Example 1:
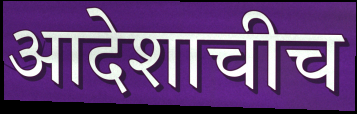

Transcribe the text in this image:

आदेशाचीच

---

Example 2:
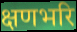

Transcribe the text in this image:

क्षणभरि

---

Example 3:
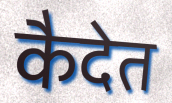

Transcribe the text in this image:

कैदेत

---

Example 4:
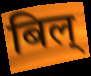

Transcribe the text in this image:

बिल्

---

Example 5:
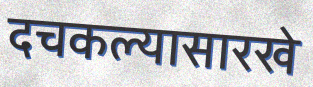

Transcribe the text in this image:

दचकल्यासारखे